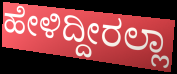
ಹೇಳಿದ್ದೀರಲ್ಲಾ